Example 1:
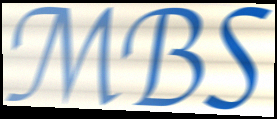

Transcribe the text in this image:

MBS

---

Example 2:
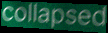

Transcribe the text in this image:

collapsed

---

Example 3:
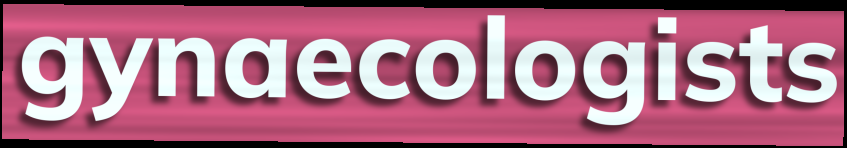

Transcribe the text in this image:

gynaecologists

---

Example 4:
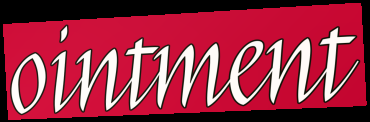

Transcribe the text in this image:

ointment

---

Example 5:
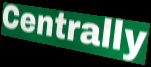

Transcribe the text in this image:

Centrally